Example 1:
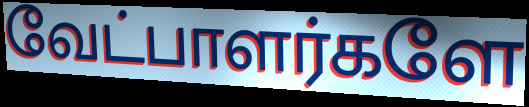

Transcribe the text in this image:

வேட்பாளர்களே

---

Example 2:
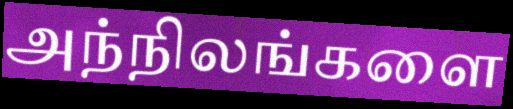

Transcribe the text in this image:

அந்நிலங்களை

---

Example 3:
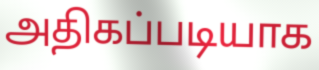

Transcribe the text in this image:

அதிகப்படியாக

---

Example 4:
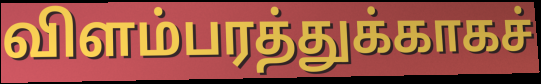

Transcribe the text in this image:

விளம்பரத்துக்காகச்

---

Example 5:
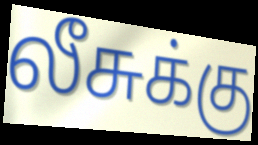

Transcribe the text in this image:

லீசுக்கு